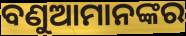
ବଣୁଆମାନଙ୍କର